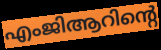
എംജിആറിന്റെ